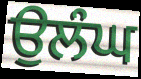
ਉਲੰਘ